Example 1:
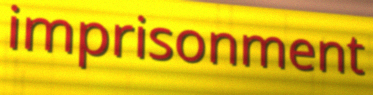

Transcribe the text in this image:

imprisonment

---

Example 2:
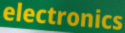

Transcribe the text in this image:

electronics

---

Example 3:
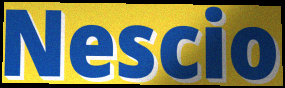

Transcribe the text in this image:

Nescio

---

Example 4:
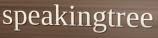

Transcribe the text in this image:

speakingtree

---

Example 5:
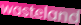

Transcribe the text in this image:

wasteland